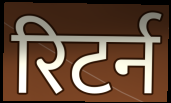
रिटर्न